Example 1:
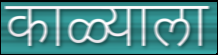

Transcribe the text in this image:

काळ्याला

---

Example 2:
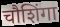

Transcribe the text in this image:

चौशिंगा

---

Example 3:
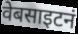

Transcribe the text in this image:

वेबसाइटनं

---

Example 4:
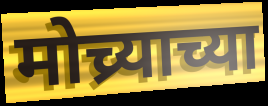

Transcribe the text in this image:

मोच्र्याच्या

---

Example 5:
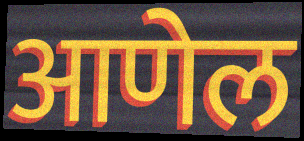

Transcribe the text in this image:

आणेल